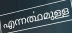
എന്നൎത്ഥമുള്ള